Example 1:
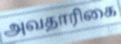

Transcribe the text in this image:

அவதாரிகை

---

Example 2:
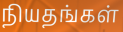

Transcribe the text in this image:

நியதங்கள்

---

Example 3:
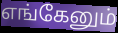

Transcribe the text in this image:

எங்கேனும்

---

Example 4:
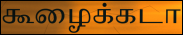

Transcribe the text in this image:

கூழைக்கடா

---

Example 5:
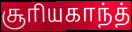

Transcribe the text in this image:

சூரியகாந்த்